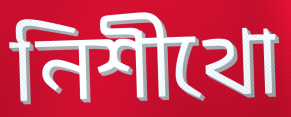
নিশীথো